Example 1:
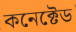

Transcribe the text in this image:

কনেক্টেড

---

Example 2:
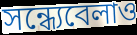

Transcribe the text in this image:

সন্ধ্যেবেলাও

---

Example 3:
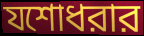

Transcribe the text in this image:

যশোধরার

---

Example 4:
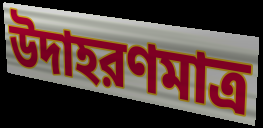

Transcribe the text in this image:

উদাহরণমাত্র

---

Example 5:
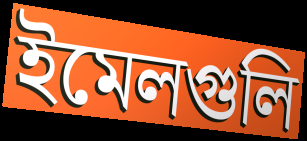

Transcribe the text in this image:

ইমেলগুলি